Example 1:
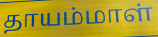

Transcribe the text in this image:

தாயம்மாள்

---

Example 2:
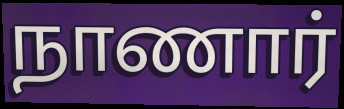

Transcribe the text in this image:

நாணார்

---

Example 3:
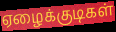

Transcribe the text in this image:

ஏழைக்குடிகள்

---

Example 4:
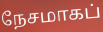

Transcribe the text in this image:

நேசமாகப்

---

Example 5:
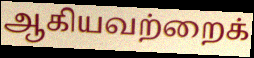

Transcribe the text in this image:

ஆகியவற்றைக்